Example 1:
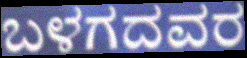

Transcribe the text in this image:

ಬಳಗದವರ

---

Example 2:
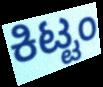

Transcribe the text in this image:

ಕಿಟ್ಟಂ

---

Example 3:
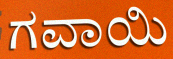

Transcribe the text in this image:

ಗವಾಯಿ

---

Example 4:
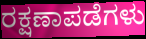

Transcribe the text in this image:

ರಕ್ಷಣಾಪಡೆಗಳು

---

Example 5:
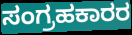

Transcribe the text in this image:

ಸಂಗ್ರಹಕಾರರ